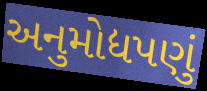
અનુમોદ્યપણું